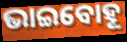
ଭାଇବୋହୂ